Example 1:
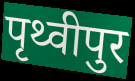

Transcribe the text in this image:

पृथ्वीपुर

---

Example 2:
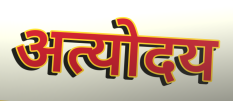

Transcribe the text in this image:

अत्योदय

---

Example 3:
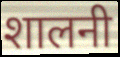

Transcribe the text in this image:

शालनी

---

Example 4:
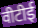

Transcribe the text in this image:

वीटीई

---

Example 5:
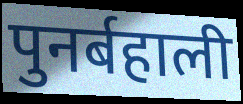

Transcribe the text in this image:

पुनर्बहाली